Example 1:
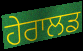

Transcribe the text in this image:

ਹੇਰਾਲਡ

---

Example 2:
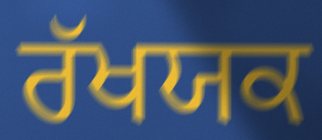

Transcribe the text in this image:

ਰੱਖਯਕ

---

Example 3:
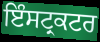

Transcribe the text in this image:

ਇੰਸਟ੍ਰਕਟਰ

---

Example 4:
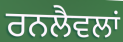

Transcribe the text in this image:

ਰਨਲੈਵਲਾਂ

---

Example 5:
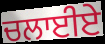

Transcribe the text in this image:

ਚਲਾਈਏ